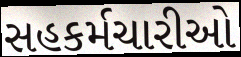
સહકર્મચારીઓ